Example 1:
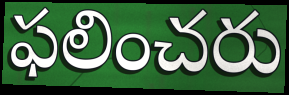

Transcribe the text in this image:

ఫలించరు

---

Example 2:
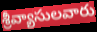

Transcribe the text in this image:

శ్రీవ్యాసులవారు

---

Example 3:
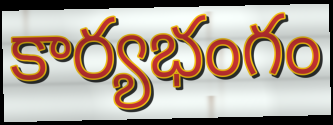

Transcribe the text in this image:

కార్యభంగం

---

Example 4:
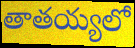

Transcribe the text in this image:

తాతయ్యలో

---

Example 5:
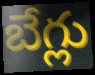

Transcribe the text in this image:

బేగ్లు